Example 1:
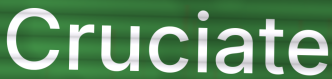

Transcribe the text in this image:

Cruciate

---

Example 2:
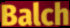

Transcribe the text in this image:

Balch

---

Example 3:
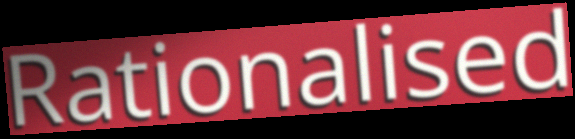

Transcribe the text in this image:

Rationalised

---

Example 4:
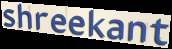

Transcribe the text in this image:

shreekant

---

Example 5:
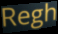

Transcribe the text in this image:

Regh